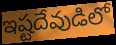
ఇష్టదేవుడిలో